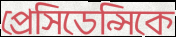
প্রেসিডেন্সিকে